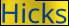
Hicks